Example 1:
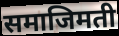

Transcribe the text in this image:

समाजिमती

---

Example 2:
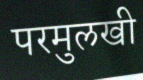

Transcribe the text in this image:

परमुलखी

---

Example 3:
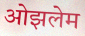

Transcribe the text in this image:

ओझलेम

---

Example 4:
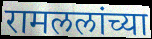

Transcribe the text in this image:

रामललांच्या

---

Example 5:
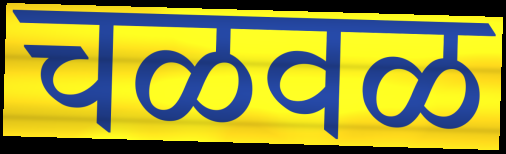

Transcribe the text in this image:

चळवळ